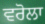
ਵਰੋਲਾ